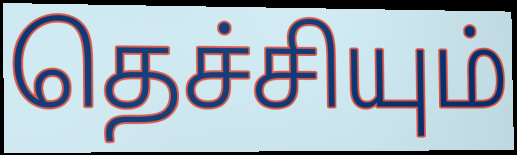
தெச்சியும்